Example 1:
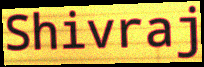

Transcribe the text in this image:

Shivraj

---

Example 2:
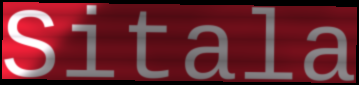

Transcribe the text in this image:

Sitala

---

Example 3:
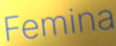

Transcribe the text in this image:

Femina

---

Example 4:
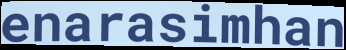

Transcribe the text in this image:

enarasimhan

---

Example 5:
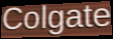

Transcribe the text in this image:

Colgate